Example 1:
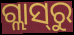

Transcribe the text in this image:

ଗ୍ଲାସ୍‍ରୁ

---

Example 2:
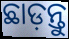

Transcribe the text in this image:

ଛାଡ଼ନ୍ତୁ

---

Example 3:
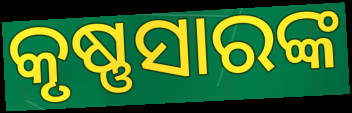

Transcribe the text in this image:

କୃଷ୍ଣସାରଙ୍କ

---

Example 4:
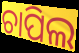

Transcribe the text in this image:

ଚାପିଲ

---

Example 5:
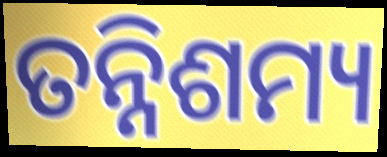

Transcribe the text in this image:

ତନ୍ନିଶମ୍ୟ